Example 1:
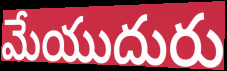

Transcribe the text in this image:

మేయుదురు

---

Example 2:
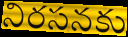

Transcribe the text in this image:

నిరసనకు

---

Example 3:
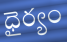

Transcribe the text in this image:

ధైర్యం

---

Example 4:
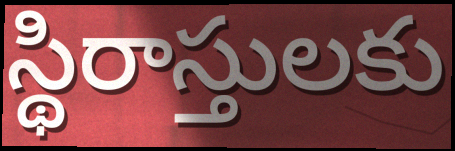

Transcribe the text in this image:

స్థిరాస్తులకు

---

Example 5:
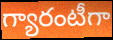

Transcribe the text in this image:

గ్యారంటీగా